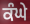
ਕੰਘੇ